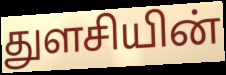
துளசியின்